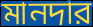
মানদার